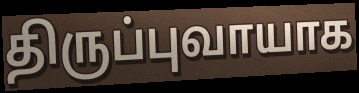
திருப்புவாயாக